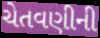
ચેતવણીની